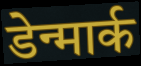
डेन्मार्क